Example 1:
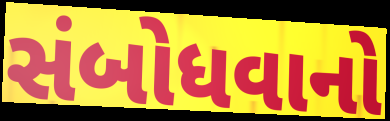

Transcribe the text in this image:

સંબોધવાનો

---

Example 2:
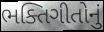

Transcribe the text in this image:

ભક્તિગીતોનું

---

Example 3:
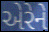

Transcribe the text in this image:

એરેને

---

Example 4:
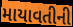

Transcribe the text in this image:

માયાવતીની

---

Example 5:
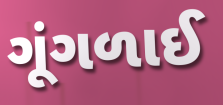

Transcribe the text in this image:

ગૂંગળાઈ